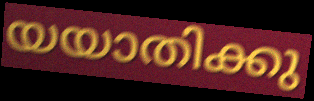
യയാതിക്കു